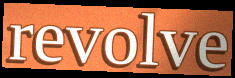
revolve